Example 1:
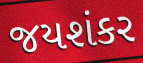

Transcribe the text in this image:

જયશંકર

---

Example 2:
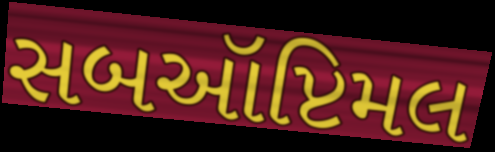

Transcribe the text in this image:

સબઑપ્ટિમલ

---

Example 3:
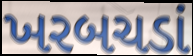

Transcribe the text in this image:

ખરબચડાં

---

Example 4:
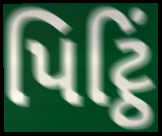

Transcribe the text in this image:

પિટ્ઠિં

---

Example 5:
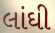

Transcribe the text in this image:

લાંઘી